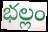
భల్లం